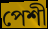
পেশী